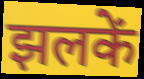
झलकें